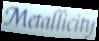
Metallicity